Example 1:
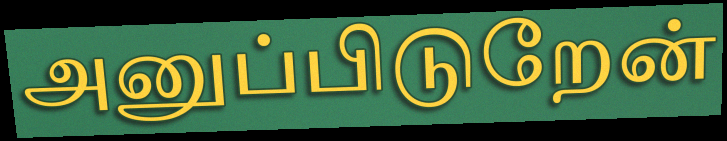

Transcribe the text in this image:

அனுப்பிடுறேன்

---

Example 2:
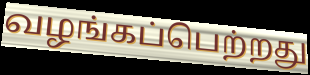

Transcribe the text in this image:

வழங்கப்பெற்றது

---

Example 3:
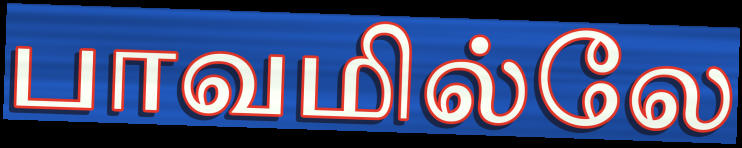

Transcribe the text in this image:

பாவமில்லே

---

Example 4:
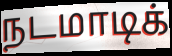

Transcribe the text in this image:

நடமாடிக்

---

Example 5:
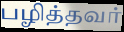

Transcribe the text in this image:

பழித்தவர்